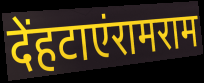
देंहटाएंरामराम